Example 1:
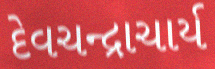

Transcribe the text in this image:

દેવચન્દ્રાચાર્ય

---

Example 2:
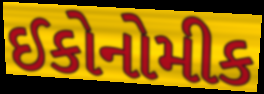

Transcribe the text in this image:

ઈકોનોમીક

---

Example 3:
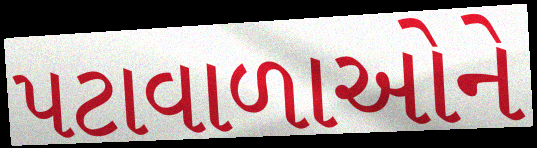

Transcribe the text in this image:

પટાવાળાઓને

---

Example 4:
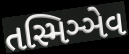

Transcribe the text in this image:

તસ્મિઞ્ઞેવ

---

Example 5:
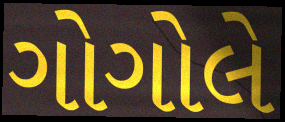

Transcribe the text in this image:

ગોગોલે